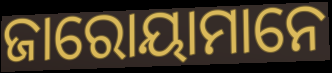
ଜାରୋୟାମାନେ